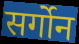
सर्गोन